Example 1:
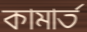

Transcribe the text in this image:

কামাৰ্ত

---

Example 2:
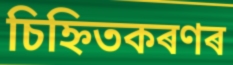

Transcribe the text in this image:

চিহ্নিতকৰণৰ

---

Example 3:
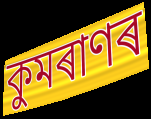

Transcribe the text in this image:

কুমৰাণৰ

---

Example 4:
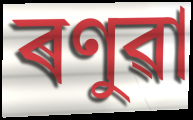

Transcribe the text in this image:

ৰণুৱা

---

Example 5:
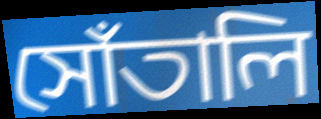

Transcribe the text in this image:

সোঁতালি